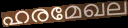
ഹരമേഖല